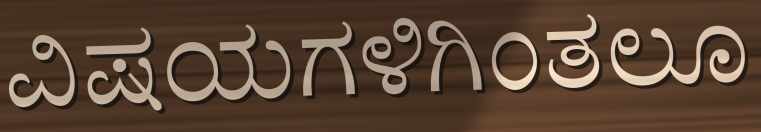
ವಿಷಯಗಳಿಗಿಂತಲೂ